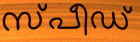
സ്പീഡ്